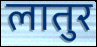
लातुर